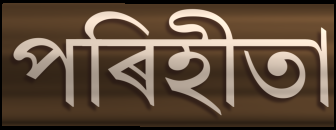
পৰিহীতা